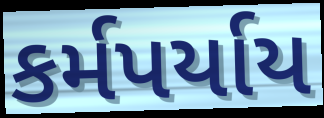
કર્મપર્યાય